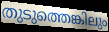
തുടുത്തെങ്കിലും